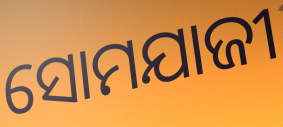
ସୋମଯାଜୀ